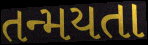
તન્મયતા